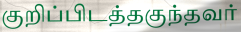
குறிப்பிடத்தகுந்தவர்